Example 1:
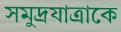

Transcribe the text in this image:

সমুদ্রযাত্রাকে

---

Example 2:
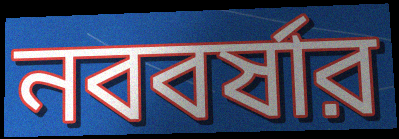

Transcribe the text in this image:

নববর্ষার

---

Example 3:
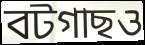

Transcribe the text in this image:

বটগাছও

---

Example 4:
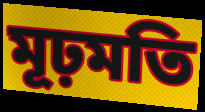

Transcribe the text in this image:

মূঢ়মতি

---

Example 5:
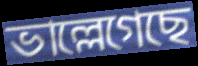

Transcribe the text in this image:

ভাল্লেগেছে